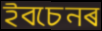
ইবচেনৰ